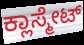
ಕ್ಲಾಸ್ಮೇಟ್